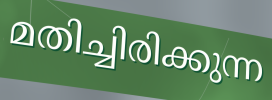
മതിച്ചിരിക്കുന്ന